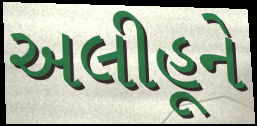
અલીહૂને